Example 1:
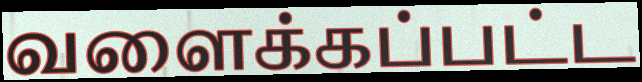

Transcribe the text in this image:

வளைக்கப்பட்ட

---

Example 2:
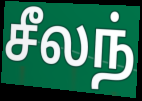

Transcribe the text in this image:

சீலந்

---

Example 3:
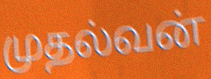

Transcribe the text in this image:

முதல்வன்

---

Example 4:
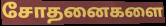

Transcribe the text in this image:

சோதனைகளை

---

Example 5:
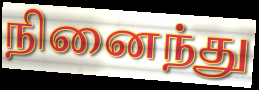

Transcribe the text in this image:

நினைந்து